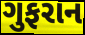
ગુફરાન